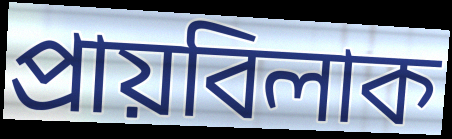
প্ৰায়বিলাক